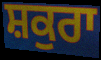
ਸ਼ਕੁਰਾ